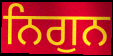
ਨਿਗੁਨ